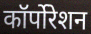
कॉर्पोरेशन